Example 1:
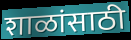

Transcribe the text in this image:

शाळांसाठी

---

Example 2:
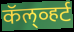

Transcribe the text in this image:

कॅल्व्हर्ट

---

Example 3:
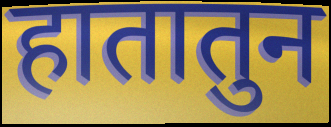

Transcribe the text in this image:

हातातुन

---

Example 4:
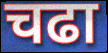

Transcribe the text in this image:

चढा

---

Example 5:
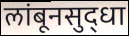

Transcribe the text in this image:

लांबूनसुद्धा